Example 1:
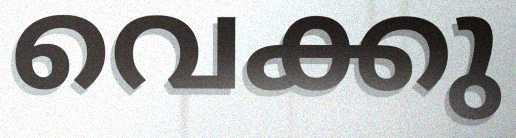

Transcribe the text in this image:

വെക്കു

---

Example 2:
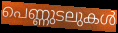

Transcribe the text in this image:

പെണ്ണുടലുകൾ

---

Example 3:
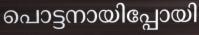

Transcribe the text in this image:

പൊട്ടനായിപ്പോയി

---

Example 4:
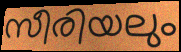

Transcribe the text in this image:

സീരിയലും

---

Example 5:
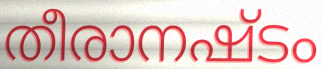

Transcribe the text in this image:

തീരാനഷ്ടം